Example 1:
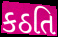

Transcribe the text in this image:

કઠતિ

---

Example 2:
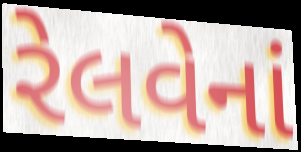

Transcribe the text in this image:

રેલવેનાં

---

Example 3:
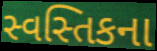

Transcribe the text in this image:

સ્વસ્તિકના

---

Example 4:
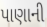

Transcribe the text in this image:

પાણાની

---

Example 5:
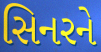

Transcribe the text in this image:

સિનરને